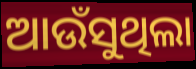
ଆଉଁସୁଥିଲା